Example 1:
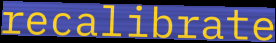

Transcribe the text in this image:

recalibrate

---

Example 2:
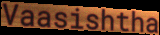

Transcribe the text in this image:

Vaasishtha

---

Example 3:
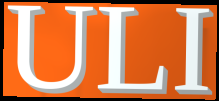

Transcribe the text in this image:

ULI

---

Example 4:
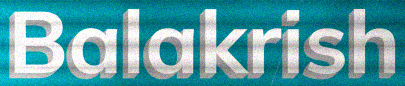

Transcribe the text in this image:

Balakrish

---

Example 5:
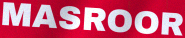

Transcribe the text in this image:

MASROOR